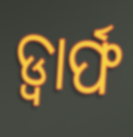
ଡ୍ୱାର୍ଫ